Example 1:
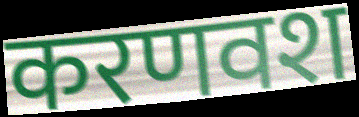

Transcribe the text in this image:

करणवश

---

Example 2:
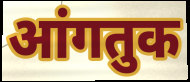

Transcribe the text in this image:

आंगतुक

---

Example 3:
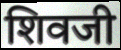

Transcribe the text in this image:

शिवजी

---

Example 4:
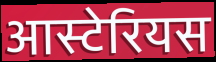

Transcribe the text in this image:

आस्टेरियस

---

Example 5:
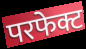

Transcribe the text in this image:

परफेक्ट